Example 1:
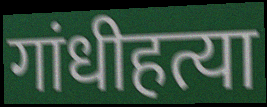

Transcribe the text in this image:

गांधीहत्या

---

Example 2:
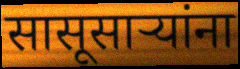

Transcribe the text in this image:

सासूसाऱ्यांना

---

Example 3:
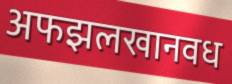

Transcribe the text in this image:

अफझलखानवध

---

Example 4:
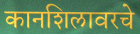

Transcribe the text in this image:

कानशिलावरचे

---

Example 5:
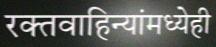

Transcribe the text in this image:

रक्तवाहिन्यांमध्येही